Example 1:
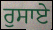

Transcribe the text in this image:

ਰੁਸਾਏ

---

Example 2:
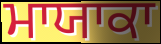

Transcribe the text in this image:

ਮਾਯਾਕਾ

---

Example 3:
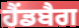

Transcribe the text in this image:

ਹੈਂਡਬੈਗ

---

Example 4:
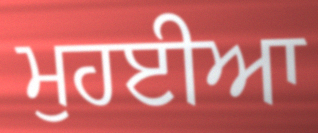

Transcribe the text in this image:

ਮੁਹਈਆ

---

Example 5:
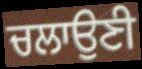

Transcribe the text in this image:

ਚਲਾਉਣੀ